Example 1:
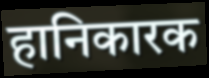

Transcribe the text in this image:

हानिकारक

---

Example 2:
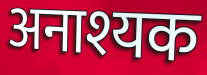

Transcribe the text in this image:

अनाश्यक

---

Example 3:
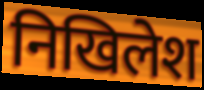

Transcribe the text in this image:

निखिलेश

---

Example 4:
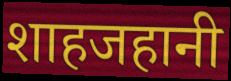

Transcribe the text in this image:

शाहजहानी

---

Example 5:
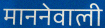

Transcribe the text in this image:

माननेवाली